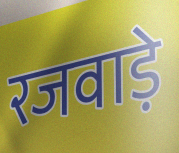
रजवाड़े